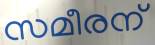
സമീരന്